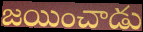
జయించాడు